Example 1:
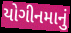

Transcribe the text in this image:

યોગીનમાનું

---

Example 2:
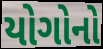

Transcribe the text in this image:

યોગોનો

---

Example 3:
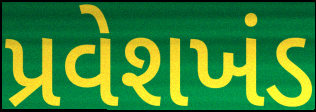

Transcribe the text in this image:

પ્રવેશખંડ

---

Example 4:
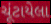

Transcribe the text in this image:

ચૂંટાયેલા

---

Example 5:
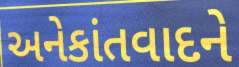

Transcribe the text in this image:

અનેકાંતવાદને